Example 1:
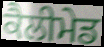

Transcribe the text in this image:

ਕੈਲੀਮੇਡ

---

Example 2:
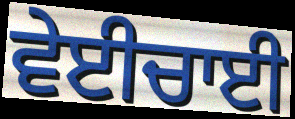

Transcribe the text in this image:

ਵੇਈਚਾਈ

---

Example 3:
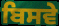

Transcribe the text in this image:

ਬਿਸਵੇ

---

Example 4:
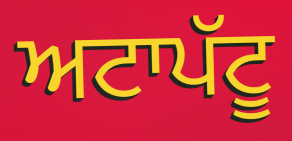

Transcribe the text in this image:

ਅਟਾਪੱਟੂ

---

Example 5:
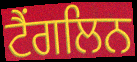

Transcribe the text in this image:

ਟੈਂਗਲਿਨ